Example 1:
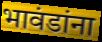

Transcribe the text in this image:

भावंडांना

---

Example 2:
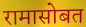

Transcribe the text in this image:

रामासोबत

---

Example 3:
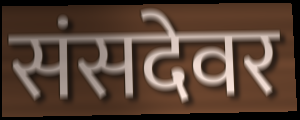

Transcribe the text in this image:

संसदेवर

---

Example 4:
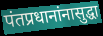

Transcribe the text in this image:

पंतप्रधानांनासुद्धा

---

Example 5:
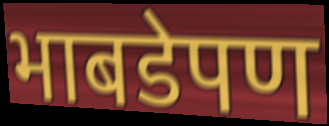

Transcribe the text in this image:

भाबडेपण